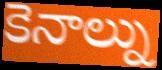
కెనాల్ను